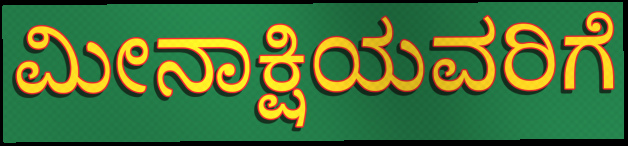
ಮೀನಾಕ್ಷಿಯವರಿಗೆ